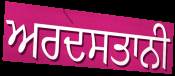
ਅਰਦਸਤਾਨੀ